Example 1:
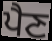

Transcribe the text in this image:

ਪੈਣ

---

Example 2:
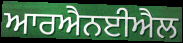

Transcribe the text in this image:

ਆਰਐਨਈਐਲ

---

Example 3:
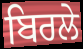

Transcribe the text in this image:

ਬਿਰਲੇ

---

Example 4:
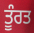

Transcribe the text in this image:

ਤੂੰਰਤ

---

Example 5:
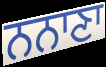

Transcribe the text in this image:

ਨਨਾਣਾ